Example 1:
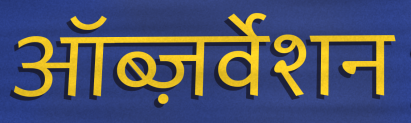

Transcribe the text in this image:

ऑब्ज़र्वेशन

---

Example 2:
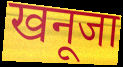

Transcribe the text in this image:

खनूजा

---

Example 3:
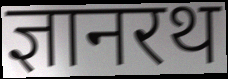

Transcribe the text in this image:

ज्ञानरथ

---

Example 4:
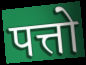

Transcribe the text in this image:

पत्तो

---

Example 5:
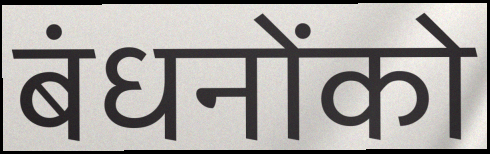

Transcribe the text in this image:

बंधनोंको